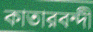
কাতারবন্দী